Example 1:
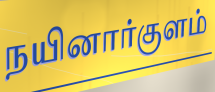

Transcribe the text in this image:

நயினார்குளம்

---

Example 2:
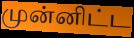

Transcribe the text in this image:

முன்னிட்ட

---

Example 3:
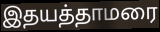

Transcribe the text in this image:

இதயத்தாமரை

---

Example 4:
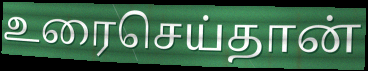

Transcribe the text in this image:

உரைசெய்தான்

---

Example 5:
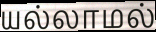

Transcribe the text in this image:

யல்லாமல்